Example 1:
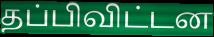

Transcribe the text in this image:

தப்பிவிட்டன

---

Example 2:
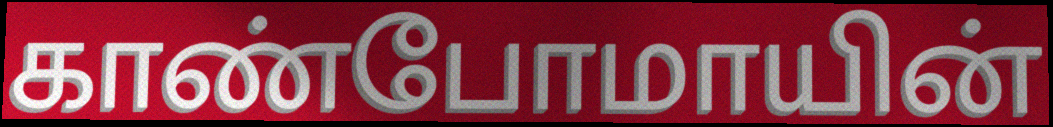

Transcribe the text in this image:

காண்போமாயின்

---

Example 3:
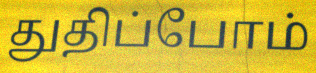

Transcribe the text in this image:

துதிப்போம்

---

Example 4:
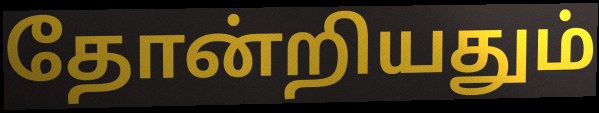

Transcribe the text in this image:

தோன்றியதும்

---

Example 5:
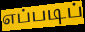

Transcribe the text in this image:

எப்படிப்